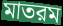
মাতরম